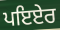
ਪਇਏਰ